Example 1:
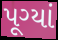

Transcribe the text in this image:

પૂગ્યાં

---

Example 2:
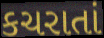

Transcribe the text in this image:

કચરાતાં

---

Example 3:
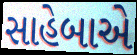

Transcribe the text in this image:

સાહેબાએ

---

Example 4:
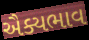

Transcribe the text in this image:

ઐક્યભાવ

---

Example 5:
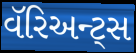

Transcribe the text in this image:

વૅરિઅન્ટ્સ